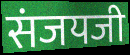
संजयजी